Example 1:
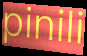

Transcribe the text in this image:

pinili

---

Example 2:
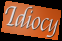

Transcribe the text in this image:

Idiocy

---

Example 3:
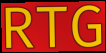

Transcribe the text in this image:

RTG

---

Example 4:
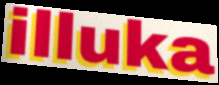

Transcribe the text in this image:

illuka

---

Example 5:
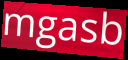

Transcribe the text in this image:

mgasb